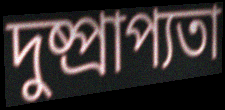
দুষ্প্রাপ্যতা